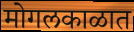
मोगलकाळात